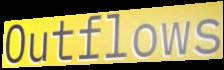
Outflows